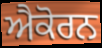
ਐਕੋਰਨ